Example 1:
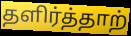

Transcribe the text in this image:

தளிர்த்தாற்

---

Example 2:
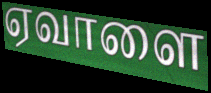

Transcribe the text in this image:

ஏவாளை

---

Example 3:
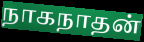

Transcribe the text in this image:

நாகநாதன்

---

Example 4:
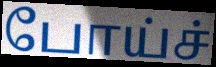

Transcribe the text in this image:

போய்ச்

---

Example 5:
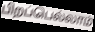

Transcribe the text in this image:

பிறப்பெல்லாம்